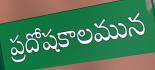
ప్రదోషకాలమున